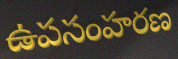
ఉపసంహరణ